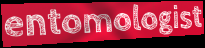
entomologist